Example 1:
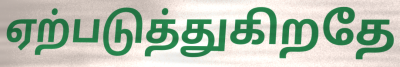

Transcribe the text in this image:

ஏற்படுத்துகிறதே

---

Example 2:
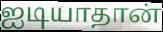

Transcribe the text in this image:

ஐடியாதான்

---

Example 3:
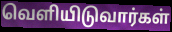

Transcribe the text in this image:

வெளியிடுவார்கள்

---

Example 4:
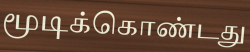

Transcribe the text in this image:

மூடிக்கொண்டது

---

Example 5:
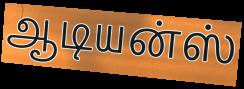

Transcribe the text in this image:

ஆடியன்ஸ்